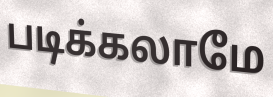
படிக்கலாமே